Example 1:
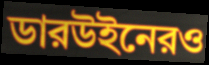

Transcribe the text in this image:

ডারউইনেরও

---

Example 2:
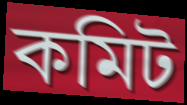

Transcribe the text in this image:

কমিট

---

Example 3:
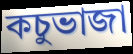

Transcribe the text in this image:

কচুভাজা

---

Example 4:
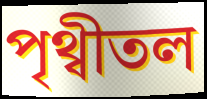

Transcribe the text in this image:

পৃথ্বীতল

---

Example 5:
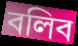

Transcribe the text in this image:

বলিব